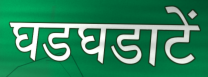
घडघडाटें